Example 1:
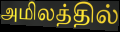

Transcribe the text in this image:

அமிலத்தில்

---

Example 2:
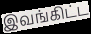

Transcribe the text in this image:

இவங்கிட்ட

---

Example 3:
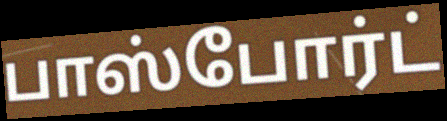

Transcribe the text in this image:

பாஸ்போர்ட்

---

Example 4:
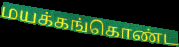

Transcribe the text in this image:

மயக்கங்கொண்ட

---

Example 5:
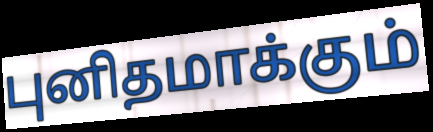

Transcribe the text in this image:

புனிதமாக்கும்